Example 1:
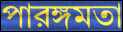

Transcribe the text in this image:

পারঙ্গমতা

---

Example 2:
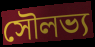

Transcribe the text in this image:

সৌলভ্য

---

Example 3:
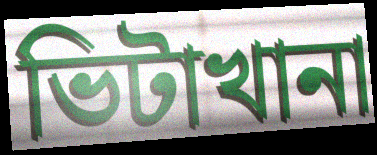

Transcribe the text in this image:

ভিটাখানা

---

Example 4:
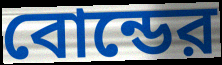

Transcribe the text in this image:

বোন্ডের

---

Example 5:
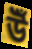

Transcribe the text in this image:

উঁ